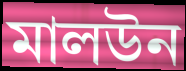
মালউন